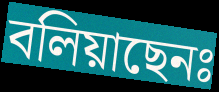
বলিয়াছেনঃ